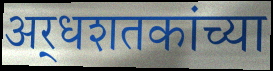
अर्धशतकांच्या